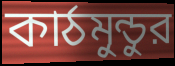
কাঠমুন্ডুর